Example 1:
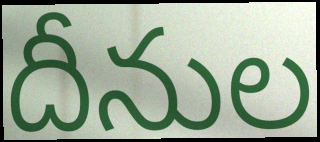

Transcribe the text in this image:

దీనుల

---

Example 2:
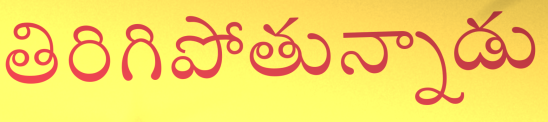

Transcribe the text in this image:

తిరిగిపోతున్నాడు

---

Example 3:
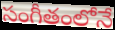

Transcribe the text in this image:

సంగీతంలోనే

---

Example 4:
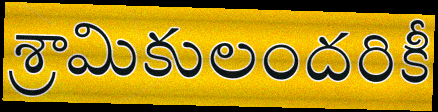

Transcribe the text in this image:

శ్రామికులందరికీ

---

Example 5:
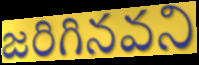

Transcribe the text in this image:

జరిగినవని